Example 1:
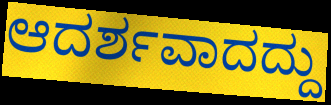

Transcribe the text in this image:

ಆದರ್ಶವಾದದ್ದು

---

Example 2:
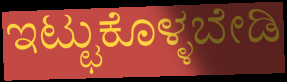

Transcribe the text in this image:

ಇಟ್ಟುಕೊಳ್ಳಬೇಡಿ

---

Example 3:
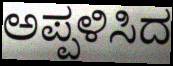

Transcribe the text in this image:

ಅಪ್ಪಳಿಸಿದ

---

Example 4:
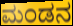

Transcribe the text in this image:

ಮಂಡನ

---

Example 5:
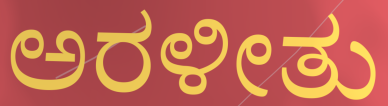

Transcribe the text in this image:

ಅರಳೀತು